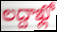
లద్దాఖ్లో